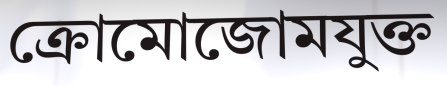
ক্রোমোজোমযুক্ত